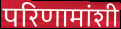
परिणामांशी